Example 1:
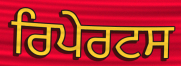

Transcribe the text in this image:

ਰਿਪੇਰਟਸ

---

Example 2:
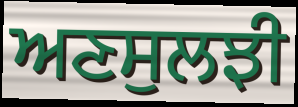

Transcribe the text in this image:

ਅਣਸੁਲਝੀ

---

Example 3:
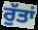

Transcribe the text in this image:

ਰੁੱਤਾਂ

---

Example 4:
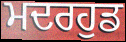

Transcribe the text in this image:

ਮਦਰਹੁਡ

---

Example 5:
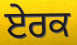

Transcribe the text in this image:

ਏਰਕ